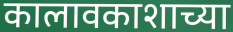
कालावकाशाच्या